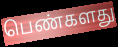
பெண்களது